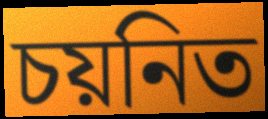
চয়নিত